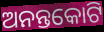
ଅନନ୍ତକୋଟି